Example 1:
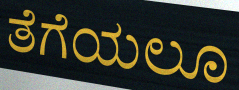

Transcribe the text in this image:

ತೆಗೆಯಲೂ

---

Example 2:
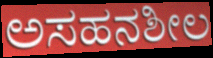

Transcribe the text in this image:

ಅಸಹನಶೀಲ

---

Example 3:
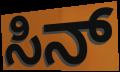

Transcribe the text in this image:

ಸಿನ್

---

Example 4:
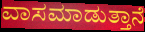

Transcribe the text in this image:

ವಾಸಮಾಡುತ್ತಾನೆ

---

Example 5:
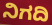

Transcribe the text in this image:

ನಿಗದಿ